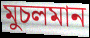
মুচলমান